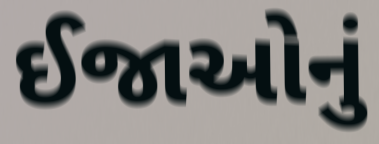
ઈજાઓનું